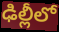
ఢిల్లీలో